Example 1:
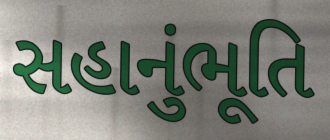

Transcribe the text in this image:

સહાનુંભૂતિ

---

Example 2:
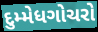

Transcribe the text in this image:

દુમ્મેધગોચરો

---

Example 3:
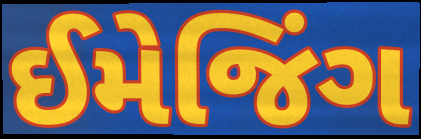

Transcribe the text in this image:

ઈમેજિંગ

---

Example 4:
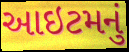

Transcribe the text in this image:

આઇટમનું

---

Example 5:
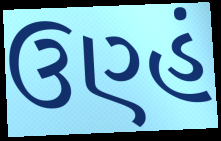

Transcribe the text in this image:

ઉણ્હં